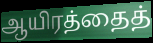
ஆயிரத்தைத்